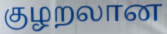
குழறலான